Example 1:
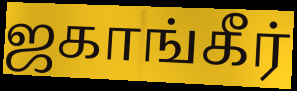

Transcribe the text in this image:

ஜகாங்கீர்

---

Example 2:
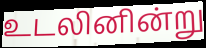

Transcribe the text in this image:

உடலினின்று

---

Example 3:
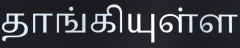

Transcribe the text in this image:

தாங்கியுள்ள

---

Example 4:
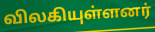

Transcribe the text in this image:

விலகியுள்ளனர்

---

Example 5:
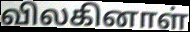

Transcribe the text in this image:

விலகினாள்